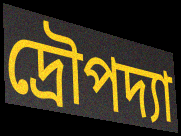
দ্রৌপদ্যা